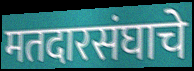
मतदारसंघाचे